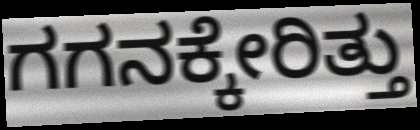
ಗಗನಕ್ಕೇರಿತ್ತು